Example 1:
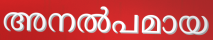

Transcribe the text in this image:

അനൽപമായ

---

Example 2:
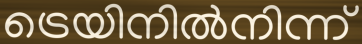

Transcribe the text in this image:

ട്രെയിനിൽനിന്ന്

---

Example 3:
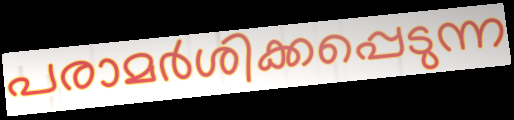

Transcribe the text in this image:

പരാമർശിക്കപ്പെടുന്ന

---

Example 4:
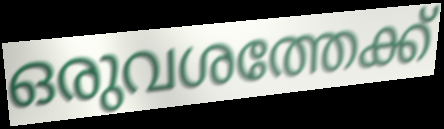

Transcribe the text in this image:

ഒരുവശത്തേക്ക്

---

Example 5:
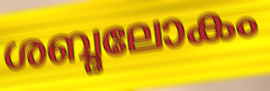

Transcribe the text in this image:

ശബ്ദലോകം